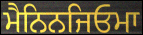
ਮੈਨਿਨਜਿਓਮਾ